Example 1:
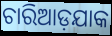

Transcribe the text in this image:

ଚାରିଆଡ଼ଯାକ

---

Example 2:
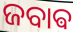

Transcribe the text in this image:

ଜବାଵ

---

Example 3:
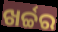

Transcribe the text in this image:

ଖର୍ଚ୍ଚର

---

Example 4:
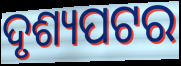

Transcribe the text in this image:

ଦୃଶ୍ୟପଟର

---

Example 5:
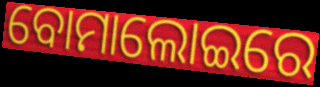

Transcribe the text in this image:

ବୋମାଲୋଇରେ